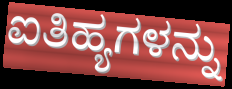
ಐತಿಹ್ಯಗಳನ್ನು